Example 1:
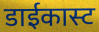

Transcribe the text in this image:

डाईकास्ट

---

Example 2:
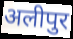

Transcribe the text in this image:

अलीपुर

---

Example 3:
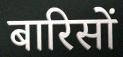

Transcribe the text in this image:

बारिसों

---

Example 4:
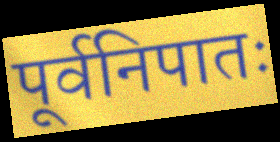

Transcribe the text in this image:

पूर्वनिपातः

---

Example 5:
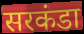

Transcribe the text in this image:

सरकंडा